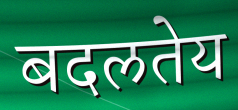
बदलतेय